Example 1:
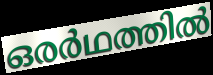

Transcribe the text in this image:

ഒരർഥത്തിൽ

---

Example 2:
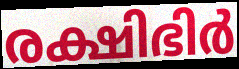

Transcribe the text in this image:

രക്ഷിഭിർ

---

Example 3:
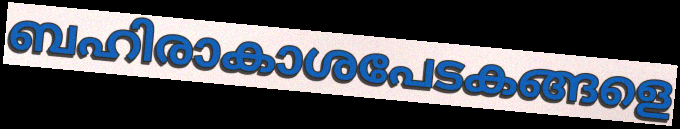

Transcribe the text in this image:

ബഹിരാകാശപേടകങ്ങളെ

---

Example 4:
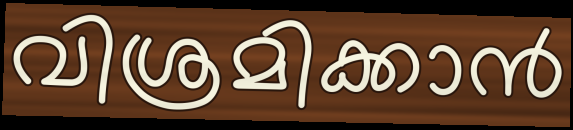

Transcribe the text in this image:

വിശ്രമിക്കാൻ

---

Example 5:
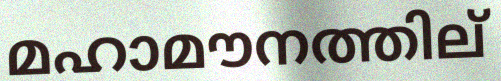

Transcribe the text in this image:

മഹാമൗനത്തില്